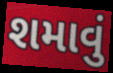
શમાવું